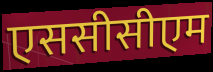
एससीसीएम